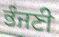
ਭੰਜਣੀ